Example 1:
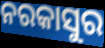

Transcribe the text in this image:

ନରକାସୁର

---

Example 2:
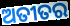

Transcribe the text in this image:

ଅତୀତର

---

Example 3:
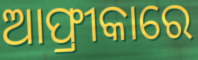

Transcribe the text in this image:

ଆଫ୍ରୀକାରେ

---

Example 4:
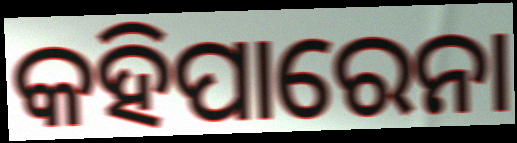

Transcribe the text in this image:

କହିପାରେନା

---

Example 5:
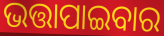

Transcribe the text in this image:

ଭତ୍ତାପାଇବାର